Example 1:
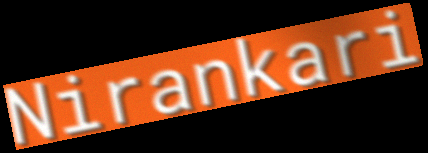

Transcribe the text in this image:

Nirankari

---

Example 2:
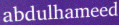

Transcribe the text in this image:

abdulhameed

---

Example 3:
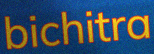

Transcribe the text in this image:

bichitra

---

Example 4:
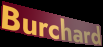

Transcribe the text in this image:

Burchard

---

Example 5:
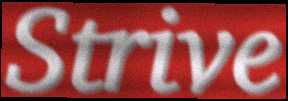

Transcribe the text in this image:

Strive